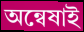
অন্বেষাই